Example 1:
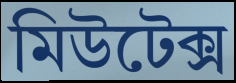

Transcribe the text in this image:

মিউটেক্স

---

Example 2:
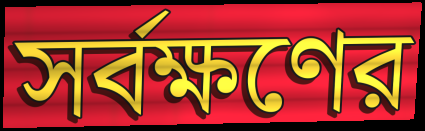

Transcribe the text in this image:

সর্বক্ষণের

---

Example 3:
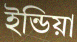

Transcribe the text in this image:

ইন্ডিয়া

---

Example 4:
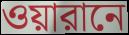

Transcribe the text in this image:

ওয়ারানে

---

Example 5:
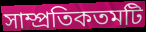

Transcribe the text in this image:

সাম্প্রতিকতমটি